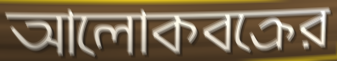
আলোকবক্রের